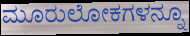
ಮೂರುಲೋಕಗಳನ್ನೂ